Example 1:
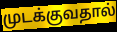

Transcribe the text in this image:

முடக்குவதால்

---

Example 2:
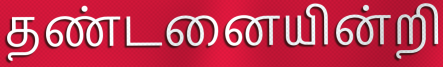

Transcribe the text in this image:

தண்டனையின்றி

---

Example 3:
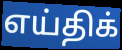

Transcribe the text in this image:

எய்திக்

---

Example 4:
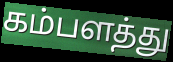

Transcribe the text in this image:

கம்பளத்து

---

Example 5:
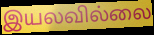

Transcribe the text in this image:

இயலவில்லை